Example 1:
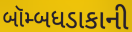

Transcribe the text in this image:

બૉમ્બધડાકાની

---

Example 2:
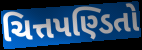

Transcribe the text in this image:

ચિત્તપણ્ડિતો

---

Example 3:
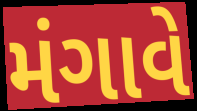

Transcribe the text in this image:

મંગાવે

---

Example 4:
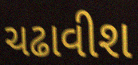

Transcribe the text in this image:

ચઢાવીશ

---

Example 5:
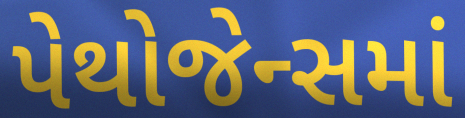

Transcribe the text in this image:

પેથોજેન્સમાં